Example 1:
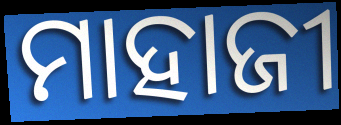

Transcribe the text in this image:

ମାହାଜୀ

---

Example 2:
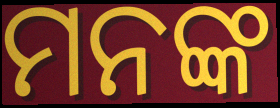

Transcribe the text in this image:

ମନଙ୍କ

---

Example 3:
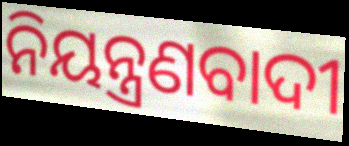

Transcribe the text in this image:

ନିୟନ୍ତ୍ରଣବାଦୀ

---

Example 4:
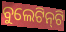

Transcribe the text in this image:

ବୁଲେଟିନ୍‍ଟି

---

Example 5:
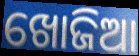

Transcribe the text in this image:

ଖୋଜିଆ